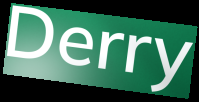
Derry